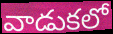
వాడుకలో